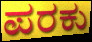
ಪರಕು